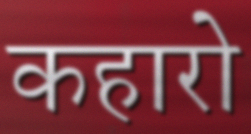
कहारो